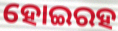
ହୋଇରହ